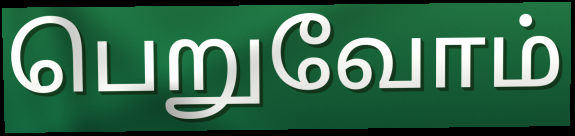
பெறுவோம்